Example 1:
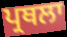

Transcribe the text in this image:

ਪ੍ਰਥਲਾ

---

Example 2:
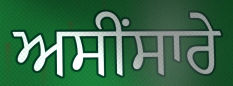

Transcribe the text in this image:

ਅਸੀਂਸਾਰੇ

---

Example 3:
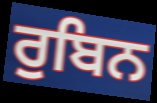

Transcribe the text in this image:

ਰੁਬਿਨ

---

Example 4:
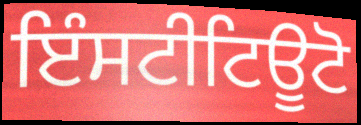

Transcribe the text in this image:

ਇੰਸਟੀਟਿਊਟੋ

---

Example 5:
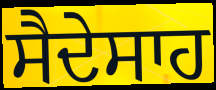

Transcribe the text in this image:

ਸੈਦੇਸਾਹ